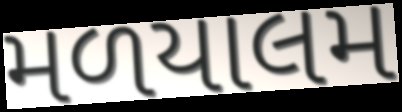
મળયાલમ